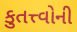
કુતત્ત્વોની